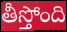
తీస్తోంది